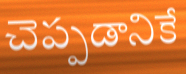
చెప్పడానికే